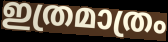
ഇത്രമാത്രം